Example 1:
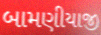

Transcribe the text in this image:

બામણીયાજી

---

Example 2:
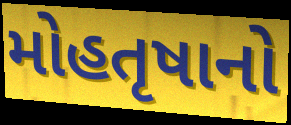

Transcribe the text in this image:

મોહતૃષાનો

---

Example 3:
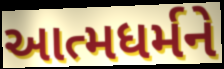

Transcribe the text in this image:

આત્મધર્મને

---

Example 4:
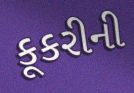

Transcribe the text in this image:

કૂકરીની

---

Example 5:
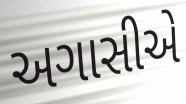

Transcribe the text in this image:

અગાસીએ